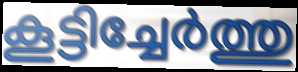
കൂട്ടിച്ചേർത്തു